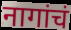
नागांचं